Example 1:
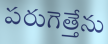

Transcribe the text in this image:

పరుగెత్తేను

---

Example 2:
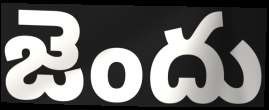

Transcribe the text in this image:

జెందు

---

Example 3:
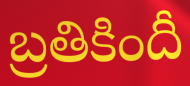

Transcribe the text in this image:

బ్రతికిందీ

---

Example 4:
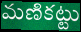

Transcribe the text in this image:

మణికట్టు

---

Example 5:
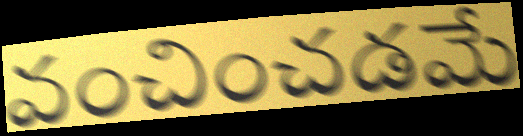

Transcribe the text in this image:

వంచించడమే